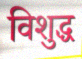
विशुद्ध